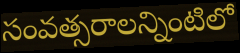
సంవత్సరాలన్నింటిలో